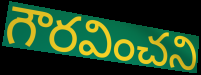
గౌరవించని